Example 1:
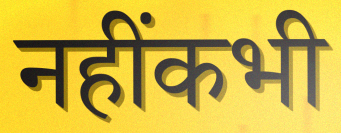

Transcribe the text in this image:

नहींकभी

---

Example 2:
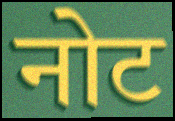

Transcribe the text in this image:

नोट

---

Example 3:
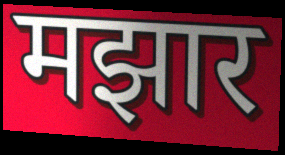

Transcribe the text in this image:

मझार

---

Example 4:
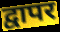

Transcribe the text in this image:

द्वापर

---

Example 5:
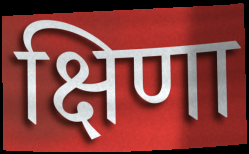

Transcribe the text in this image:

क्षिणा